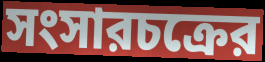
সংসারচক্রের